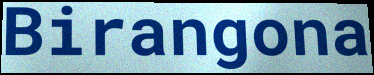
Birangona